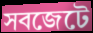
সবজেটে